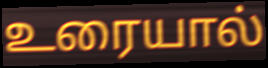
உரையால்